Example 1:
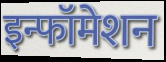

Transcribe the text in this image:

इन्फॉमेशन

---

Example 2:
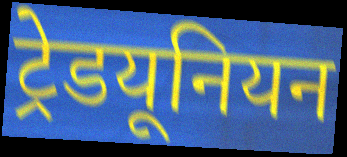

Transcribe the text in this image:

ट्रेडयूनियन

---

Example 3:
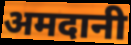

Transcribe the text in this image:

अमदानी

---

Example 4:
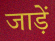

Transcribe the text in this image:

जाड़ें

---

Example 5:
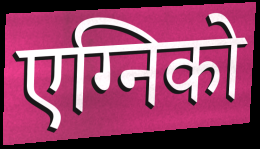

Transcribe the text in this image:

एग्निको